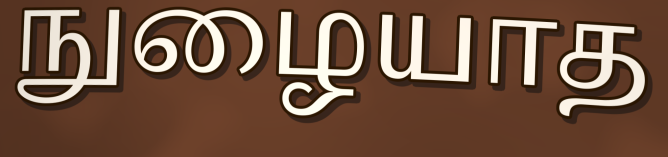
நுழையாத